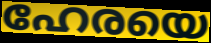
ഹേരയെ